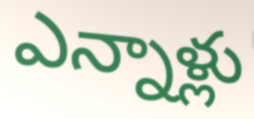
ఎన్నాళ్లు